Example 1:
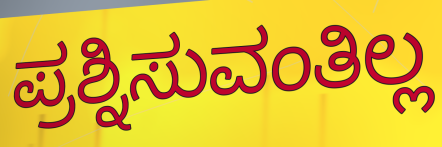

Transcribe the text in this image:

ಪ್ರಶ್ನಿಸುವಂತಿಲ್ಲ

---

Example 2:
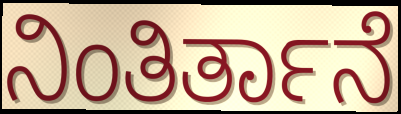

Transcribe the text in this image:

ನಿಂತಿರ್ತಾನೆ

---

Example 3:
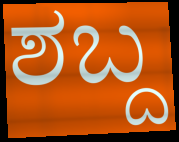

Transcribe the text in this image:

ಶಬ್ದ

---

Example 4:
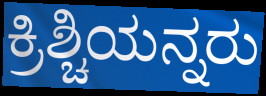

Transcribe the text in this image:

ಕ್ರಿಶ್ಚಿಯನ್ನರು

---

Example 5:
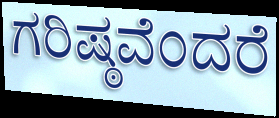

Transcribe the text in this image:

ಗರಿಷ್ಠವೆಂದರೆ